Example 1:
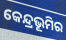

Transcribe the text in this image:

କେନ୍ଦ୍ରଭୂମିର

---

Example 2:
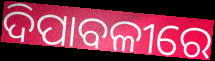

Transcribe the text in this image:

ଦିପାବଳୀରେ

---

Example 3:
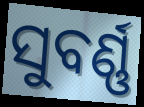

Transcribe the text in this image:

ସୁବର୍ଣ୍ଣ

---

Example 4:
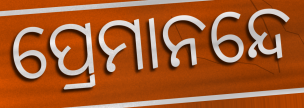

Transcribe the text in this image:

ପ୍ରେମାନନ୍ଦେ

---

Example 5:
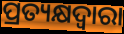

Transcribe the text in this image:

ପ୍ରତ୍ୟକ୍ଷଦ୍ବାରା